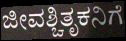
ಜೀವಶ್ಚಿತೃಕನಿಗೆ